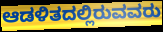
ಆಡಳಿತದಲ್ಲಿರುವವರು